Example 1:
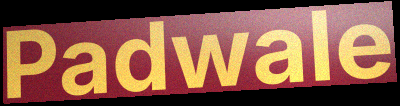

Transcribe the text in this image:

Padwale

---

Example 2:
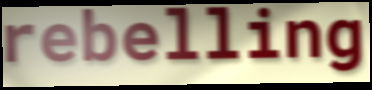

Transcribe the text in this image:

rebelling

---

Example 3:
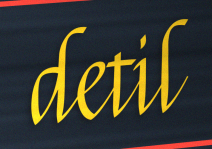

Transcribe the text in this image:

detil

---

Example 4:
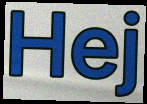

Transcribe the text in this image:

Hej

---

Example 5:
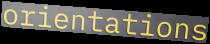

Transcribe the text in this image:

orientations